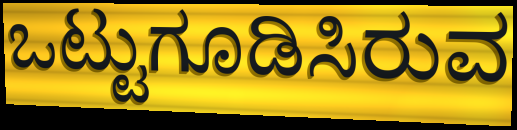
ಒಟ್ಟುಗೂಡಿಸಿರುವ